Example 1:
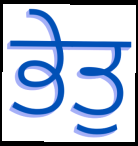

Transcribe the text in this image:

ਭੇਤੁ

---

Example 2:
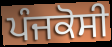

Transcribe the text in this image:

ਪੰਜਕੋਸੀ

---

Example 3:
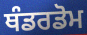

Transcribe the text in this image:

ਥੰਡਰਡੋਮ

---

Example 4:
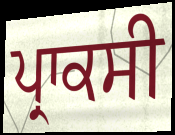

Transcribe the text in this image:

ਪ੍ਰਾਕਸੀ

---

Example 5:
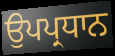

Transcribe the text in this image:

ਉਪਪ੍ਰਧਾਨ